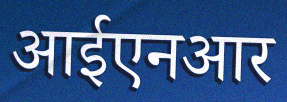
आईएनआर